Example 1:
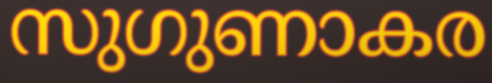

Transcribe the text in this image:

സുഗുണാകര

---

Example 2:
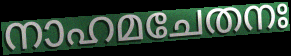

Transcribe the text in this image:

നാഹമചേതനഃ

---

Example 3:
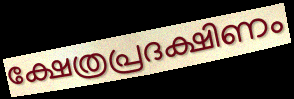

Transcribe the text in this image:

ക്ഷേത്രപ്രദക്ഷിണം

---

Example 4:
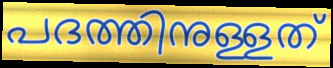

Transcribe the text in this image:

പദത്തിനുള്ളത്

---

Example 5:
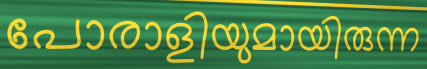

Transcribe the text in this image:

പോരാളിയുമായിരുന്ന